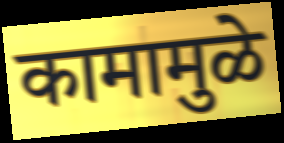
कामामुळे